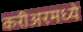
करीअरमध्ये